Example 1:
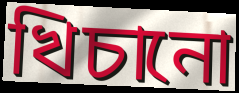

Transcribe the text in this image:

খিচানো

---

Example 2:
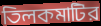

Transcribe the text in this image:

তিলকমাটির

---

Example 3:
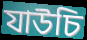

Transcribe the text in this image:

যাউচি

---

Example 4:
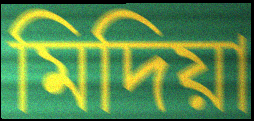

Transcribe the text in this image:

মিদিয়া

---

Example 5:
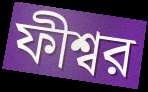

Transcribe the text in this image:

ফীশ্বর